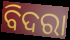
ବିଦରା